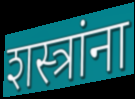
शस्त्रांना